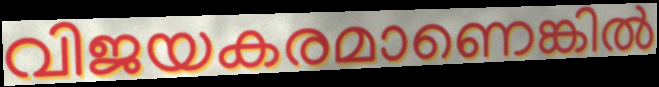
വിജയകരമാണെങ്കിൽ